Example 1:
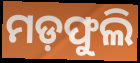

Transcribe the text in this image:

ମଡ଼ଫୁଲି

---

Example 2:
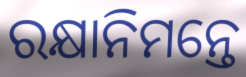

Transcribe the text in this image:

ରକ୍ଷାନିମନ୍ତେ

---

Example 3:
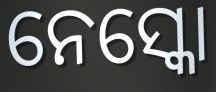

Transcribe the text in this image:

ନେସ୍କୋ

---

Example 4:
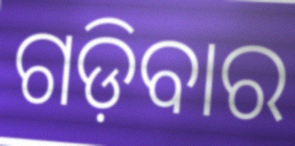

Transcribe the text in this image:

ଗଡ଼ିବାର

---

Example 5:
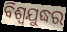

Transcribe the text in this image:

ବିଶ୍ବଯୁଦ୍ଧର